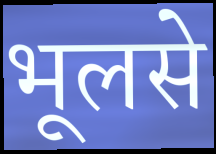
भूलसे